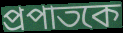
প্রপাতকে